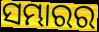
ସମ୍ଭାରର